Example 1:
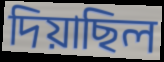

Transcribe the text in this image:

দিয়াছিল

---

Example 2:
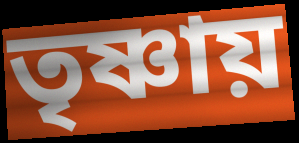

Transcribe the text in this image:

তৃষ্ণায়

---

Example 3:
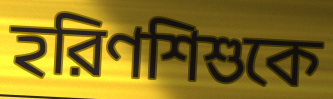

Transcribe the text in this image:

হরিণশিশুকে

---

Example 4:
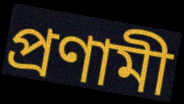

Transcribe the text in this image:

প্রণামী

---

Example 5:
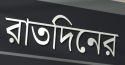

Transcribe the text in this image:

রাতদিনের